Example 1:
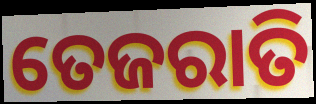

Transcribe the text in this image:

ତେଜରାତି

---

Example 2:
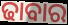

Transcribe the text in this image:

ଢାବାର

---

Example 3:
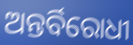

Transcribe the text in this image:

ଅନ୍ତର୍ବିରୋଧୀ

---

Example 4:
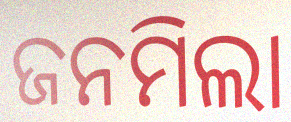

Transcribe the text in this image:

ଜନମିଲା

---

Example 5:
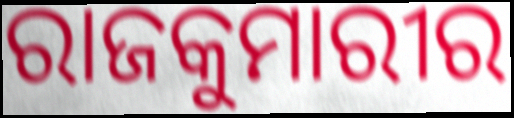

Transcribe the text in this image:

ରାଜକୁମାରୀର